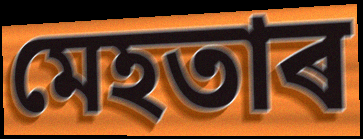
মেহতাৰ